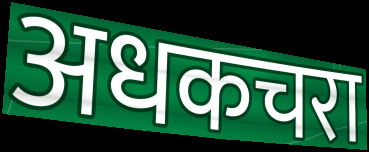
अधकचरा